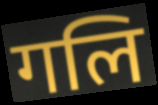
गलि